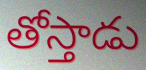
తోస్తాడు